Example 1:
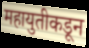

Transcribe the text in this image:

महायुतीकडून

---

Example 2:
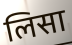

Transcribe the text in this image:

लिसा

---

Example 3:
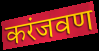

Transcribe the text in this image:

करंजवण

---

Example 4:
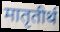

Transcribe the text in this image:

मातृतीर्थ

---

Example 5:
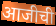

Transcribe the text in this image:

आजीची